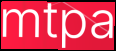
mtpa